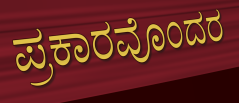
ಪ್ರಕಾರವೊಂದರ